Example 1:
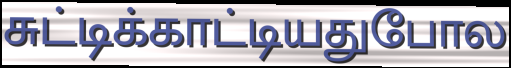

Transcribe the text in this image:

சுட்டிக்காட்டியதுபோல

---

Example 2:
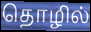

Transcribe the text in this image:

தொழில்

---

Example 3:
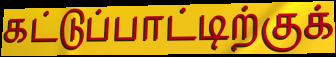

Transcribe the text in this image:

கட்டுப்பாட்டிற்குக்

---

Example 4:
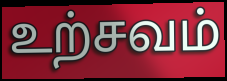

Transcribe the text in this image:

உற்சவம்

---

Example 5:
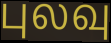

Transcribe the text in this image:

புலவு